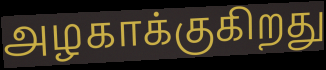
அழகாக்குகிறது